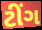
ટીંગ